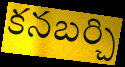
కనబర్చి